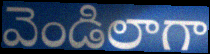
వెండిలాగా